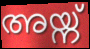
അയ്ന്